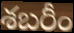
శబరీం